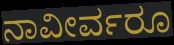
ನಾವೀರ್ವರೂ